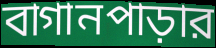
বাগানপাড়ার